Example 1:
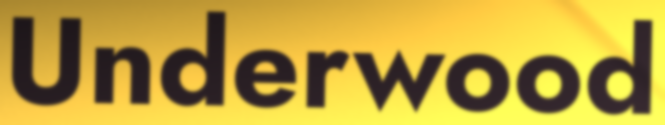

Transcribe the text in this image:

Underwood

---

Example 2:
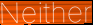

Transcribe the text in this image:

Neither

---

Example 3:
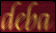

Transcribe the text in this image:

deba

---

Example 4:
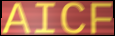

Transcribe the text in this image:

AICF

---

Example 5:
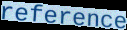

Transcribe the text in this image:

reference